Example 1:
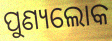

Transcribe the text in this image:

ପୁଣ୍ୟଲୋକ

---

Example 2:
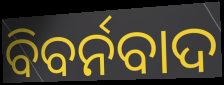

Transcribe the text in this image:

ବିବର୍ନବାଦ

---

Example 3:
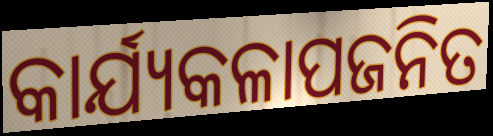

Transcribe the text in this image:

କାର୍ଯ୍ୟକଳାପଜନିତ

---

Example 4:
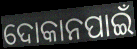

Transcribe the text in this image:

ଦୋକାନପାଇଁ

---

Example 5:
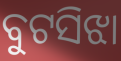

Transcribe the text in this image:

ବୁଟସିଝା